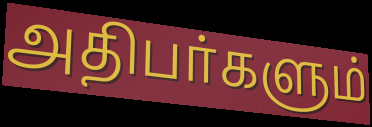
அதிபர்களும்